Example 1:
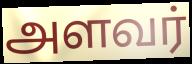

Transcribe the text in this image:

அளவர்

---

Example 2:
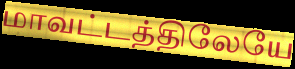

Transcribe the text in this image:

மாவட்டத்திலேயே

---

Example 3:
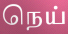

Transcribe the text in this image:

நெய்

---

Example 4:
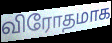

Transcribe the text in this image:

விரோதமாக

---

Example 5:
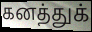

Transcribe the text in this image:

கனத்துக்